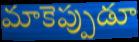
మాకెప్పుడూ